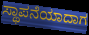
ಸ್ಥಾಪನೆಯಾದಾಗ